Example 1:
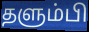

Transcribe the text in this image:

தளும்பி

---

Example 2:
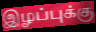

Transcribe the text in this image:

இழப்புக்கு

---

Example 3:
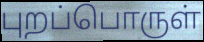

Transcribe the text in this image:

புறப்பொருள்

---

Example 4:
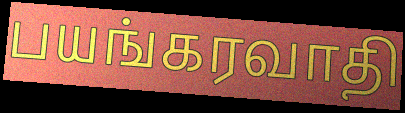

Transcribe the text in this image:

பயங்கரவாதி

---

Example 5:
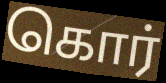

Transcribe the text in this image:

கொர்